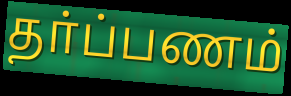
தர்ப்பணம்